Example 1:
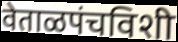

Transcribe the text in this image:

वेताळपंचविशी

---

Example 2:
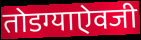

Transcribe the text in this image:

तोडग्याऐवजी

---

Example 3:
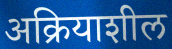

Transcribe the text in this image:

अक्रियाशील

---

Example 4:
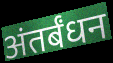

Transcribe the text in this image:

अंतर्बंधन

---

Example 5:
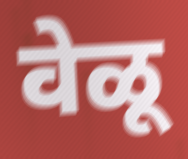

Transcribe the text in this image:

वेळू